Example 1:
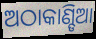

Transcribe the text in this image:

ଅଠାକାଣ୍ଡିଆ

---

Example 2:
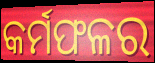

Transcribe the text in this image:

କର୍ମଫଳର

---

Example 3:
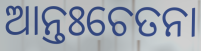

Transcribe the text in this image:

ଆନ୍ତଃଚେତନା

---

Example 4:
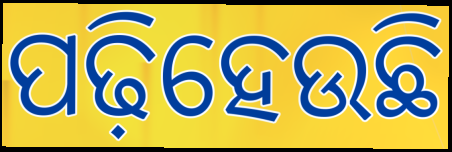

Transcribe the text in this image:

ପଢ଼ିହେଉଛି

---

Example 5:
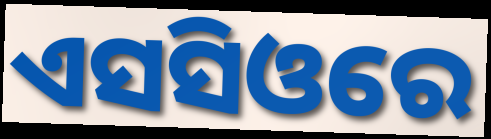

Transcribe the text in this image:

ଏସସିଓରେ